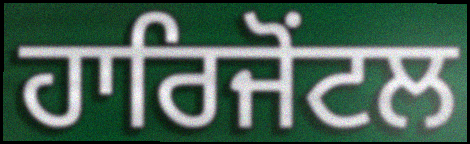
ਹਾਰਿਜੋਂਟਲ